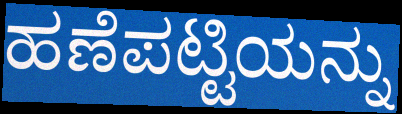
ಹಣೆಪಟ್ಟಿಯನ್ನು